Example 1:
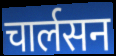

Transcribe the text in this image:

चार्लसन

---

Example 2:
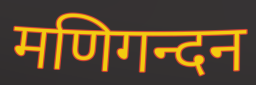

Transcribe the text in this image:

मणिगन्दन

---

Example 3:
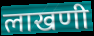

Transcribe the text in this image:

लाखणी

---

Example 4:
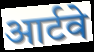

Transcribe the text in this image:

आर्टवे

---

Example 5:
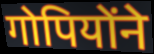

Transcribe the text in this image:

गोपियोंने